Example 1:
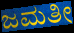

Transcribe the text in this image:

ಜಮತೀ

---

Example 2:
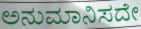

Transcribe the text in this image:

ಅನುಮಾನಿಸದೇ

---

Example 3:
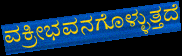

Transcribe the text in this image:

ವಕ್ರೀಭವನಗೊಳ್ಳುತ್ತದೆ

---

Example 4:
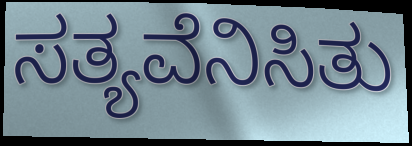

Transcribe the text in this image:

ಸತ್ಯವೆನಿಸಿತು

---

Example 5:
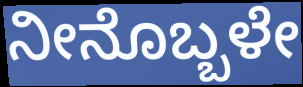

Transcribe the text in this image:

ನೀನೊಬ್ಬಳೇ